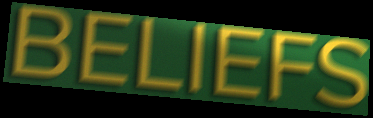
BELIEFS